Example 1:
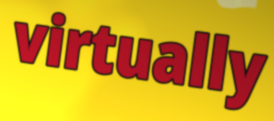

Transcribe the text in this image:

virtually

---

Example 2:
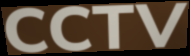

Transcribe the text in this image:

CCTV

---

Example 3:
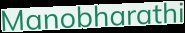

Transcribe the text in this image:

Manobharathi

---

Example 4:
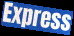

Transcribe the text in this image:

Express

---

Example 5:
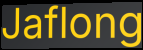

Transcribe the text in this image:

Jaflong